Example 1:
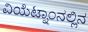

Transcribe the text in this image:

ವಿಯೆಟ್ನಾಂನಲ್ಲಿನ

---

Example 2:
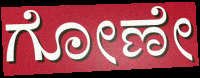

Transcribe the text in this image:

ಗೋಣೇ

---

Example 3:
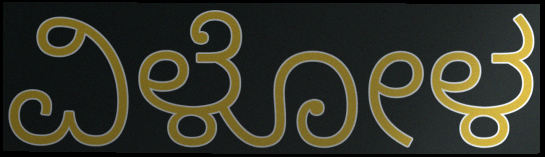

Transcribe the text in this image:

ವಿಳೋಳ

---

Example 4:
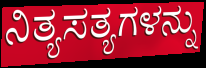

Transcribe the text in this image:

ನಿತ್ಯಸತ್ಯಗಳನ್ನು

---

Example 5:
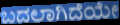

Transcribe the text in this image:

ಬದಲಾಗಿದೆಯೇ